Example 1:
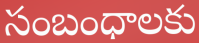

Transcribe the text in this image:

సంబంధాలకు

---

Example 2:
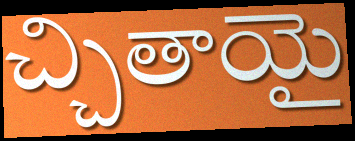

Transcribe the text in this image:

చ్చితాయై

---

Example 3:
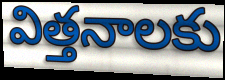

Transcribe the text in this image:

విత్తనాలకు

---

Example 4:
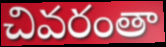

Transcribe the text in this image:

చివరంతా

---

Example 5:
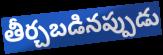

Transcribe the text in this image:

తీర్చబడినప్పుడు